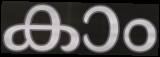
കാം